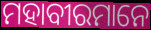
ମହାବୀରମାନେ